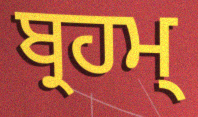
ਬ੍ਰਹਮ੍